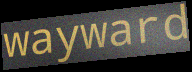
wayward